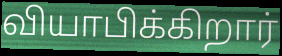
வியாபிக்கிறார்